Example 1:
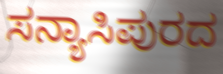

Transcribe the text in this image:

ಸನ್ಯಾಸಿಪುರದ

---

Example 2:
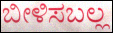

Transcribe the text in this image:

ಬೀಳಿಸಬಲ್ಲ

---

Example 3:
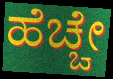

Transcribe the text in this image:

ಹೆಚ್ಚೇ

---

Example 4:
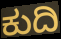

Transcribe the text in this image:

ಕುದಿ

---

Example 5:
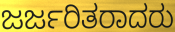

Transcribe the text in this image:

ಜರ್ಜರಿತರಾದರು